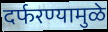
दर्फरण्यामुळे